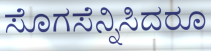
ಸೊಗಸೆನ್ನಿಸಿದರೂ